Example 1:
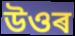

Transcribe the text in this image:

উওৰ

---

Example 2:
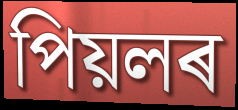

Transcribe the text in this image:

পিয়লৰ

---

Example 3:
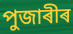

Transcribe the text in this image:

পুজাৰীৰ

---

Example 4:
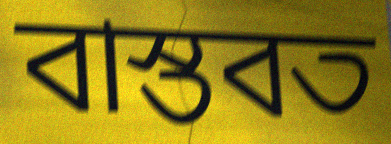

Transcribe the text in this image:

বাস্তবত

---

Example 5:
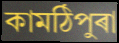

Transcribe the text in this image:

কামঠিপুৰা